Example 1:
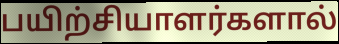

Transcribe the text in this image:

பயிற்சியாளர்களால்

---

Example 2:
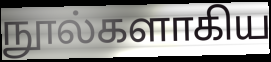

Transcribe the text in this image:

நூல்களாகிய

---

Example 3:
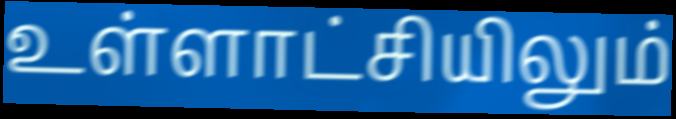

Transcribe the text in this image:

உள்ளாட்சியிலும்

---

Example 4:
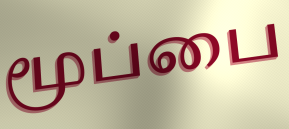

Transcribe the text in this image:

மூப்பை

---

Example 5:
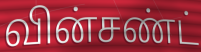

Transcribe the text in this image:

வின்சண்ட்